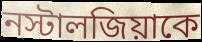
নস্টালজিয়াকে